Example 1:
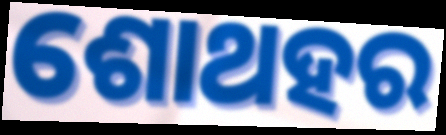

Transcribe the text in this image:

ଶୋଥହର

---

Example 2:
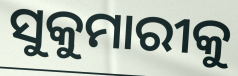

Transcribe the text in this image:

ସୁକୁମାରୀକୁ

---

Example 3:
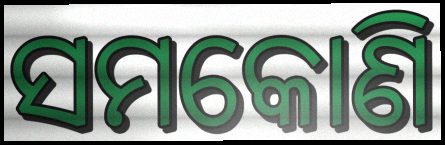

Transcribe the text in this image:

ସମକୋଣି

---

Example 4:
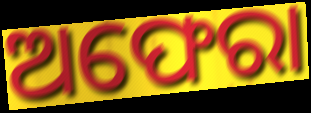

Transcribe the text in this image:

ଅଫେରା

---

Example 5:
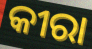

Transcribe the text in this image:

କୀରା